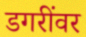
डगरींवर